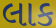
લાક